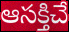
ఆసక్తిచే